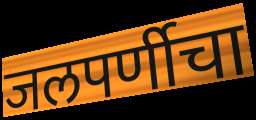
जलपर्णीचा